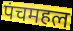
पंचमहल